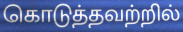
கொடுத்தவற்றில்